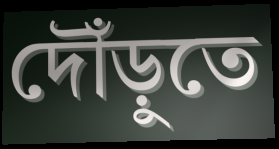
দৌঁড়ুতে